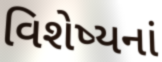
વિશેષ્યનાં